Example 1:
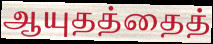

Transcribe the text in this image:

ஆயுதத்தைத்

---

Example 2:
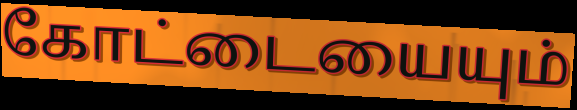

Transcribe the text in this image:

கோட்டையையும்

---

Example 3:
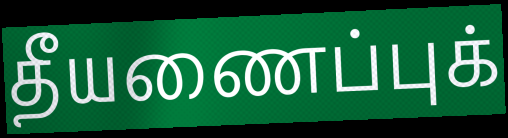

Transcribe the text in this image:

தீயணைப்புக்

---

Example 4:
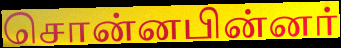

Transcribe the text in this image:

சொன்னபின்னர்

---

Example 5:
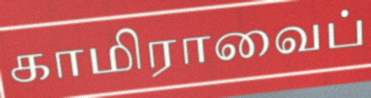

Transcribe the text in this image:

காமிராவைப்